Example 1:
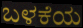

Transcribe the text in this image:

ಬಳಕೆಯ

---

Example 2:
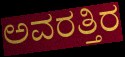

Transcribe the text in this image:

ಅವರತ್ತಿರ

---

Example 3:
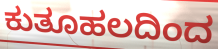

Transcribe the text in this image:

ಕುತೂಹಲದಿಂದ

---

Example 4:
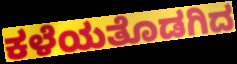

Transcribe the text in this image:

ಕಳೆಯತೊಡಗಿದ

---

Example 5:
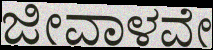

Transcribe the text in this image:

ಜೀವಾಳವೇ